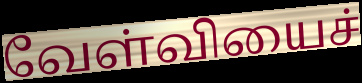
வேள்வியைச்